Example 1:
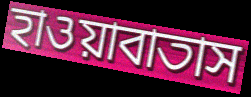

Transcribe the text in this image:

হাওয়াবাতাস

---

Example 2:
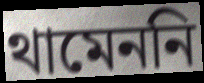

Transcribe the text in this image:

থামেননি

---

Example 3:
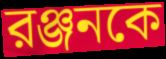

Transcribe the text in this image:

রঞ্জনকে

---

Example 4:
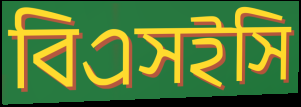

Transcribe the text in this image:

বিএসইসি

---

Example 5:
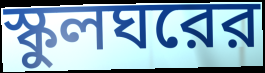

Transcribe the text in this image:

স্কুলঘরের